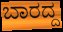
ಬಾರದ್ದ